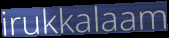
irukkalaam